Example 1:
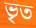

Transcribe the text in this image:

ভৃত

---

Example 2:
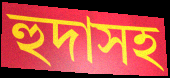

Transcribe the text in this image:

হুদাসহ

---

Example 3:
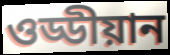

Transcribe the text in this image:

ওড্ডীয়ান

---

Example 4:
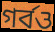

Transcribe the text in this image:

গর্বও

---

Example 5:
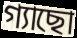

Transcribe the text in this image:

গ্যাছো